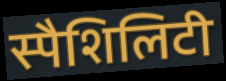
स्पैशिलिटी